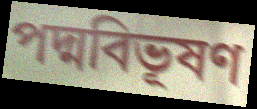
পদ্মবিভূষণ